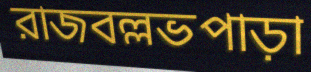
রাজবল্লভপাড়া